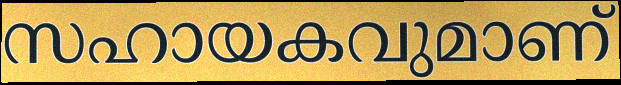
സഹായകവുമാണ്